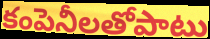
కంపెనీలతోపాటు